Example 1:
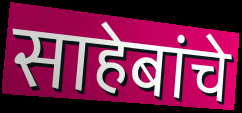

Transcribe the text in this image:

साहेबांचे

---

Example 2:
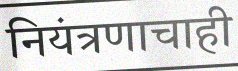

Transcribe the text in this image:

नियंत्रणाचाही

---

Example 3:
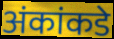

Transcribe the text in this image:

अंकांकडे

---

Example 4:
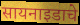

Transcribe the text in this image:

सायनाइडाचे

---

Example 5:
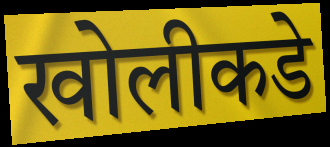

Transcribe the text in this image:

खोलीकडे